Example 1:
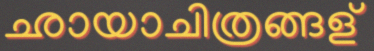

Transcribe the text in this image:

ഛായാചിത്രങ്ങള്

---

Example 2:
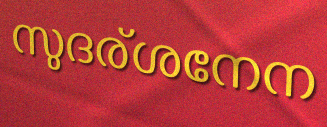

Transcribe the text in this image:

സുദര്ശനേന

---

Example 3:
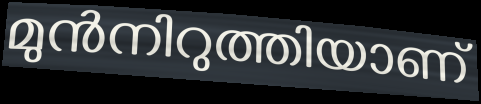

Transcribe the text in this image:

മുൻനിറുത്തിയാണ്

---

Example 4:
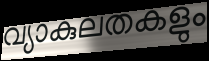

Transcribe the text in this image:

വ്യാകുലതകളും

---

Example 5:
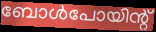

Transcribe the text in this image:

ബോൾപോയിന്റ്